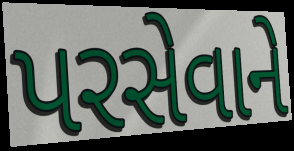
પરસેવાને